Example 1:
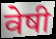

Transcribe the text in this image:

वेषी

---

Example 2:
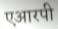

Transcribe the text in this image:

एआरपी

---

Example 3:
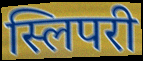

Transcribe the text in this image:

स्लिपरी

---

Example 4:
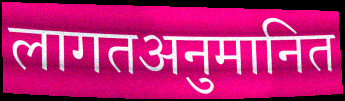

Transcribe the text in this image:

लागतअनुमानित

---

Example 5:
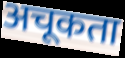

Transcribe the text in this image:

अचूकता